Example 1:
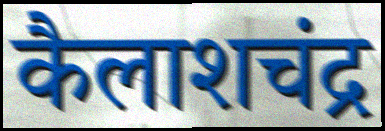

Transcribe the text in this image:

कैलाशचंद्र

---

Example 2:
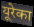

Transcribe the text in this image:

यूरेका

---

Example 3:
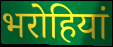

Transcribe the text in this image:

भरोहियां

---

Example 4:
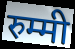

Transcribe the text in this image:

रुम्मी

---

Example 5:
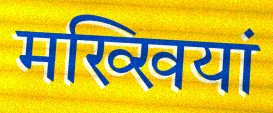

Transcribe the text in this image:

मख्खियां